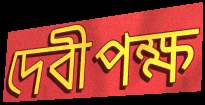
দেবীপক্ষ